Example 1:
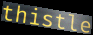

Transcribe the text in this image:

thistle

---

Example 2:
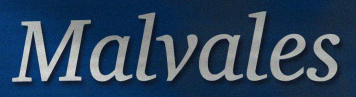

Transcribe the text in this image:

Malvales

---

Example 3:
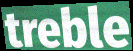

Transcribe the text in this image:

treble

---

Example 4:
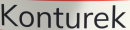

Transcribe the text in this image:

Konturek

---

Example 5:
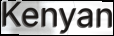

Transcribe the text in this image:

Kenyan